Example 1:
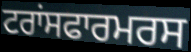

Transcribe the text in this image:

ਟਰਾਂਸਫਾਰਮਰਸ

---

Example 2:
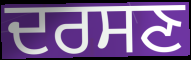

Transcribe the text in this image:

ਦਰਸਣ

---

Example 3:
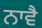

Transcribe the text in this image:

ਨਾਵੈ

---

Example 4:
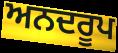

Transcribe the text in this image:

ਅਨਦਰੂਪ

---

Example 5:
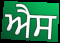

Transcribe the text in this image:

ਐੈਸ